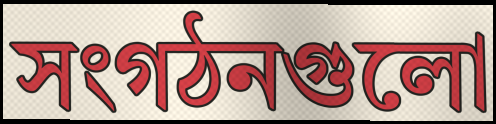
সংগঠনগুলো